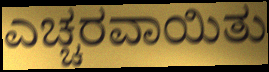
ಎಚ್ಚರವಾಯಿತು